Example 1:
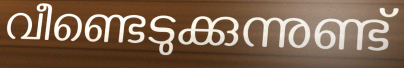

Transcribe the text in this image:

വീണ്ടെടുക്കുന്നുണ്ട്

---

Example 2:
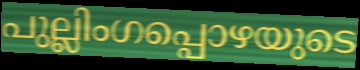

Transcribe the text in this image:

പുല്ലിംഗപ്പൊഴയുടെ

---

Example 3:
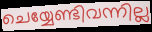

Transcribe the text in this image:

ചെയ്യേണ്ടിവന്നില്ല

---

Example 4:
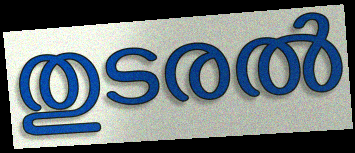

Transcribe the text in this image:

തുടരൽ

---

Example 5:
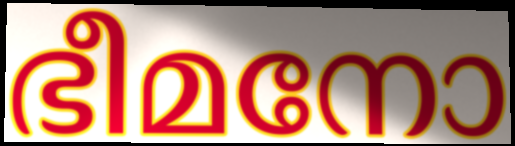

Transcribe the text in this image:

ഭീമനോ